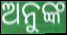
ଅନୁଙ୍କ